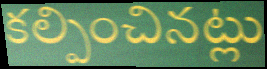
కల్పించినట్లు